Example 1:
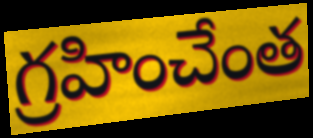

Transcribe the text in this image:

గ్రహించేంత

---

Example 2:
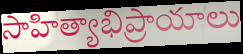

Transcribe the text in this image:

సాహిత్యాభిప్రాయాలు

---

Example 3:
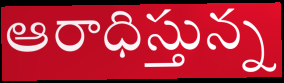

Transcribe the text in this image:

ఆరాధిస్తున్న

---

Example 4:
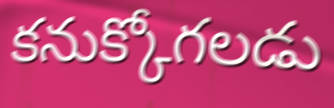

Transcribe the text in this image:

కనుక్కోగలడు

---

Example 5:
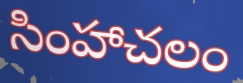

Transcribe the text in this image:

సింహాచలం